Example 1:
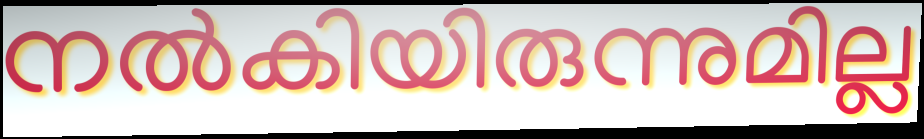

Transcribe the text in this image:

നൽകിയിരുന്നുമില്ല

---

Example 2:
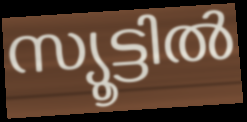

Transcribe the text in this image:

സ്യൂട്ടിൽ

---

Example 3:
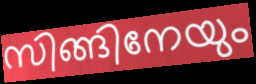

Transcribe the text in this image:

സിങ്ങിനേയും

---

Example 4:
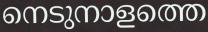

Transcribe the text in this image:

നെടുനാളത്തെ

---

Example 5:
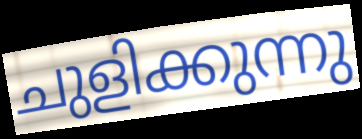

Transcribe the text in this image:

ചുളിക്കുന്നു